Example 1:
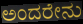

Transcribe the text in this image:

ಅಂದರೇನು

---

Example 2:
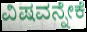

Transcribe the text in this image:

ವಿಷವನ್ನೇಕೆ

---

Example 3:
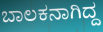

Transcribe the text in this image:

ಬಾಲಕನಾಗಿದ್ದ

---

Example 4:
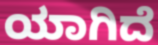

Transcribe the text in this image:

ಯಾಗಿದೆ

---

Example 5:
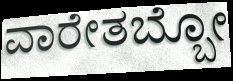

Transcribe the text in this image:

ವಾರೇತಬ್ಬೋ